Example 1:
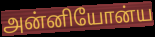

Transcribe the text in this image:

அன்னியோன்ய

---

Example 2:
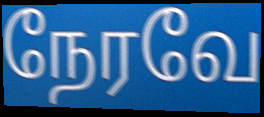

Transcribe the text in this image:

நேரவே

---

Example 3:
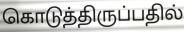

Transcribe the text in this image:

கொடுத்திருப்பதில்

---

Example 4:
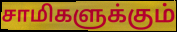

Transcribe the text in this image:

சாமிகளுக்கும்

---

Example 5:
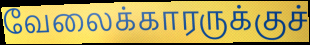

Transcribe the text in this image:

வேலைக்காரருக்குச்